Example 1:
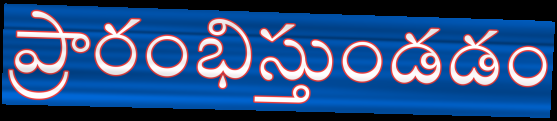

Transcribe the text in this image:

ప్రారంభిస్తుండడం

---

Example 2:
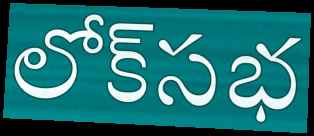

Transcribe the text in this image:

లోక్‌సభ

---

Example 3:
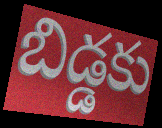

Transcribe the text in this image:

బిడ్డకు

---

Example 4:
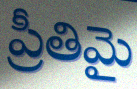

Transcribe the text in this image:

ప్రీతిమై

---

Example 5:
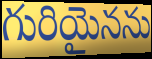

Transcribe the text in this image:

గురియైనను